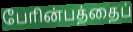
பேரின்பத்தைப்